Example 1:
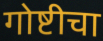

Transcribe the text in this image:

गोष्टीचा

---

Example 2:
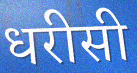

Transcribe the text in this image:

धरीसी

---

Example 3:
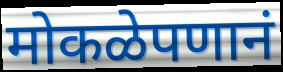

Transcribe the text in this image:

मोकळेपणानं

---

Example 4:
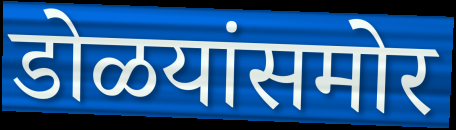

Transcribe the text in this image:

डोळयांसमोर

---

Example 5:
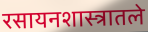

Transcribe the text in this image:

रसायनशास्त्रातले